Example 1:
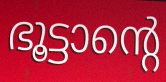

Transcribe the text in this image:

ഭൂട്ടാന്റെ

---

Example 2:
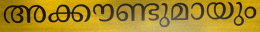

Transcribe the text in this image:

അക്കൗണ്ടുമായും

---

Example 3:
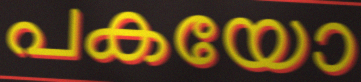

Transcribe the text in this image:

പകയോ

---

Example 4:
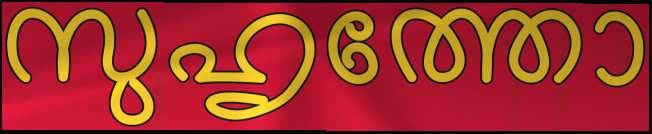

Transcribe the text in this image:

സുഹൃത്തോ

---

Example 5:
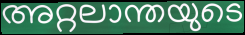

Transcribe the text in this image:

അറ്റലാന്തയുടെ